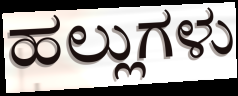
ಹಲ್ಲುಗಳು